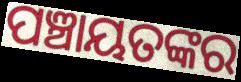
ପଞ୍ଚାୟତଙ୍କର